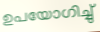
ഉപയോഗിച്ചു്